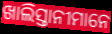
ଖାଲିସ୍ତାନୀମାନେ